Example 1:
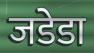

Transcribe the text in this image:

जडेडा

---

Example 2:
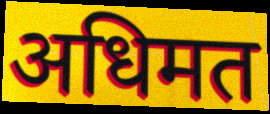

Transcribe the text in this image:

अधिमत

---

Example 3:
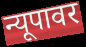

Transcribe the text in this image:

न्यूपावर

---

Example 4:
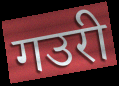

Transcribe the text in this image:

गउरी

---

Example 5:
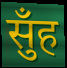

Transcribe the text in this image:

सुँह